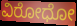
ವಿರೋಧೋ